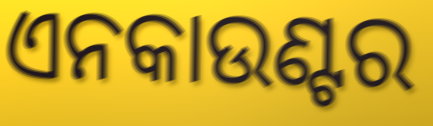
ଏନକାଉଣ୍ଟର